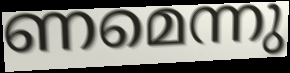
ണമെന്നു